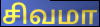
சிவமா